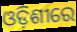
ଓଡ଼ିଶୀରେ